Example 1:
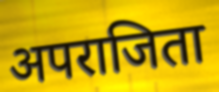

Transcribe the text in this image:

अपराजिता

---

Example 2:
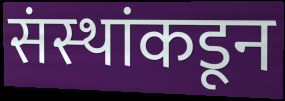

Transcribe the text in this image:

संस्थांकडून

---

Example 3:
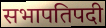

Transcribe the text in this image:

सभापतिपदी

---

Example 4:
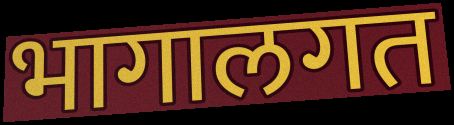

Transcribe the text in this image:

भागालगत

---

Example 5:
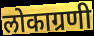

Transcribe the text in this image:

लोकाग्रणी